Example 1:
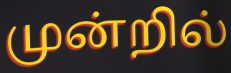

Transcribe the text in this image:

முன்றில்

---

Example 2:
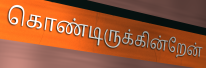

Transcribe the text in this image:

கொண்டிருக்கின்றேன்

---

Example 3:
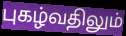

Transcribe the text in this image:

புகழ்வதிலும்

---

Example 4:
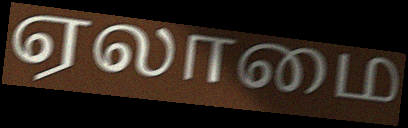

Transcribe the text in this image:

ஏலாமை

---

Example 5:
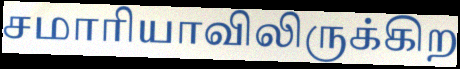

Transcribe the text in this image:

சமாரியாவிலிருக்கிற